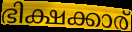
ഭിക്ഷക്കാര്